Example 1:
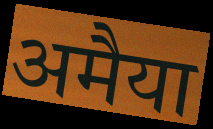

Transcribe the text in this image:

अमैया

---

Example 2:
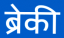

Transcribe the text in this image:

ब्रेकी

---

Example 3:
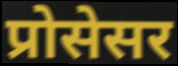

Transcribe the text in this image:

प्रोसेसर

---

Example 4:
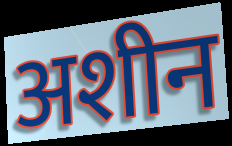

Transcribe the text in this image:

अशीन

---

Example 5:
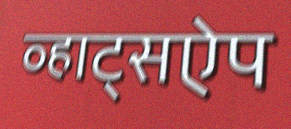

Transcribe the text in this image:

व्‍हाट्सऐप